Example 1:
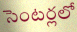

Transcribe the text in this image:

సెంటర్లలో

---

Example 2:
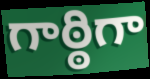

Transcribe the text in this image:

గాఠ్ఠిగా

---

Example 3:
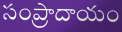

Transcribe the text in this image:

సంప్రాదాయం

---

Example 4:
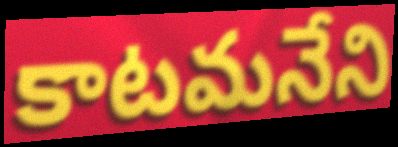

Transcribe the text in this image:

కాటమనేని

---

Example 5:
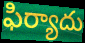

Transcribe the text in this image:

ఫిర్యాదు